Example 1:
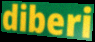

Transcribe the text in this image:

diberi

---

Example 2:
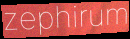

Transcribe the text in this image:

zephirum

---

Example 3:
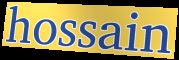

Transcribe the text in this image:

hossain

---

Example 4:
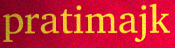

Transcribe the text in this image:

pratimajk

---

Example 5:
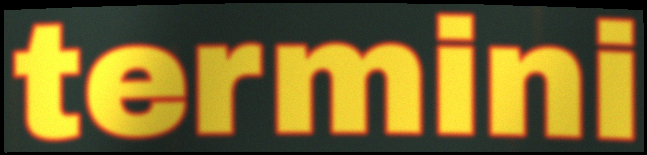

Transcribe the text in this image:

termini